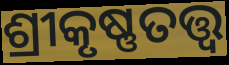
ଶ୍ରୀକୃଷ୍ଣତତ୍ତ୍ଵ